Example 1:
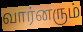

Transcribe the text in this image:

வார்னரும்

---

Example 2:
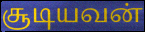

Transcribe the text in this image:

சூடியவன்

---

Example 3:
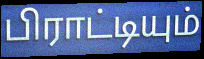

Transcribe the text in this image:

பிராட்டியும்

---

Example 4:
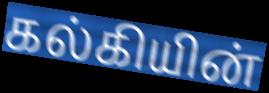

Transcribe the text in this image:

கல்கியின்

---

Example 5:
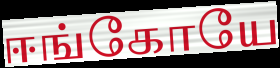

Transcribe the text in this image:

ஈங்கோயே